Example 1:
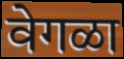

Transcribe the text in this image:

वेगळा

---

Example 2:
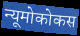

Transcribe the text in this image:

न्यूमोकोकस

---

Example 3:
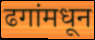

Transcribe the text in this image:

ढगांमधून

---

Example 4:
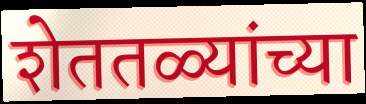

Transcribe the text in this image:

शेततळ्यांच्या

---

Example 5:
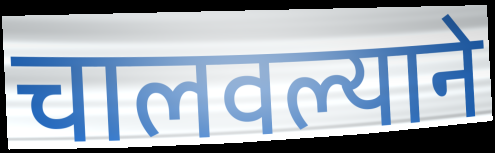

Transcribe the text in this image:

चालवल्याने